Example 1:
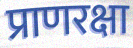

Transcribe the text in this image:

प्राणरक्षा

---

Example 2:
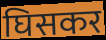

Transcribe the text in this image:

घिसकर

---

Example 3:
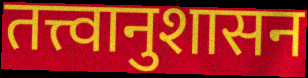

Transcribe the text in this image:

तत्त्वानुशासन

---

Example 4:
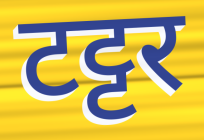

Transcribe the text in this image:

टट्टर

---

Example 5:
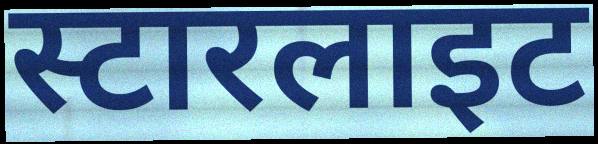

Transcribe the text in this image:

स्टारलाइट